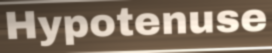
Hypotenuse